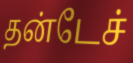
தன்டேச்